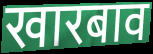
खारबाव